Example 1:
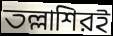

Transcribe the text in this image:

তল্লাশিরই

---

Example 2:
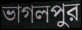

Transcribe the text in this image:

ভাগলপুর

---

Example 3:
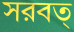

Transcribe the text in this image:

সরবত্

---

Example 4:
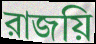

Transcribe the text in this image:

রাজয়ি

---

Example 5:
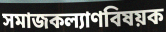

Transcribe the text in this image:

সমাজকল্যাণবিষয়ক